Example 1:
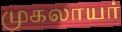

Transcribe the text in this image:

முகலாயர்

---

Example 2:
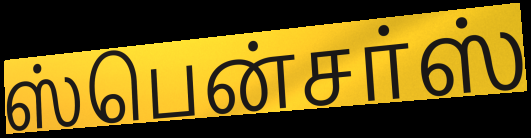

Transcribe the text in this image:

ஸ்பென்சர்ஸ்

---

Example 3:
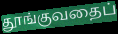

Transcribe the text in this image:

தூங்குவதைப்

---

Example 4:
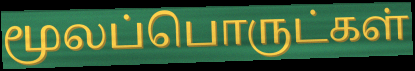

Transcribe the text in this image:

மூலப்பொருட்கள்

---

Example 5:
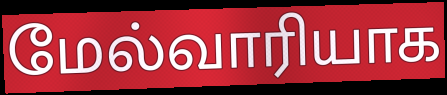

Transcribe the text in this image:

மேல்வாரியாக